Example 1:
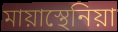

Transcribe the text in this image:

মায়াস্থেনিয়া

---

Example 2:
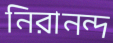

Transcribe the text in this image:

নিরানন্দ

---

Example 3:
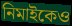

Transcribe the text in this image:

নিমাইকেও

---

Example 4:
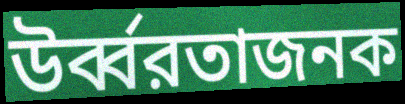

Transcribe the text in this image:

উর্ব্বরতাজনক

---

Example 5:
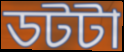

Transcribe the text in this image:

ডটটা